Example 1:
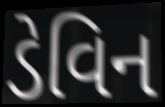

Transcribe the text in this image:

ડેવિન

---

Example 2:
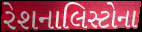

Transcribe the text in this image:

રેશનાલિસ્ટોના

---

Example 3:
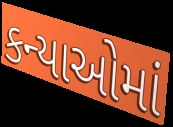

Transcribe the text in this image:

કન્યાઓમાં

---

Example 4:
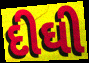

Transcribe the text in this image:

દીઘી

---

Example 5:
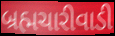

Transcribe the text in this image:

બ્રહ્મચારીવાડી